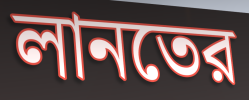
লানতের